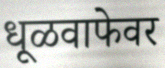
धूळवाफेवर